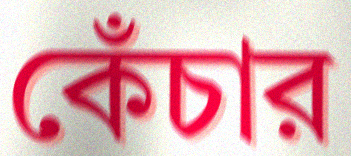
কেঁচার